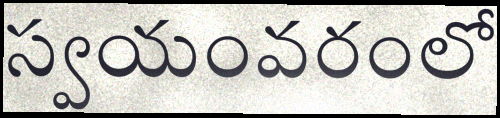
స్వయంవరంలో